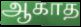
ஆகாத